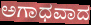
ಅಗಾಧವಾದ